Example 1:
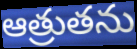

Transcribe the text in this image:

ఆత్రుతను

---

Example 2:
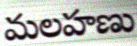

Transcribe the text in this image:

మలహణు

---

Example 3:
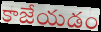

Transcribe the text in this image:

కాజేయడం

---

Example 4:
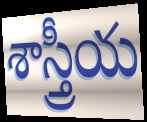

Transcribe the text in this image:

శాస్త్రీయ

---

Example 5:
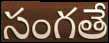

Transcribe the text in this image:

సంగతే